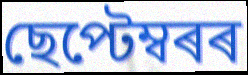
ছেপ্টেম্বৰৰ